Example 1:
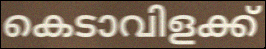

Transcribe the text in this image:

കെടാവിളക്ക്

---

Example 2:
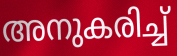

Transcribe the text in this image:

അനുകരിച്ച്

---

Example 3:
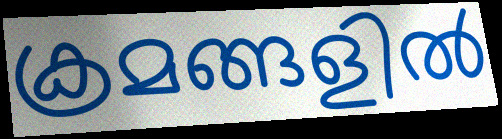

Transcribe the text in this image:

ക്രമങ്ങളിൽ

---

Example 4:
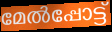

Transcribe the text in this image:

മേൽപ്പോട്ട്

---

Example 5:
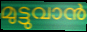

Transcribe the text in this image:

മുട്ടുവാൻ